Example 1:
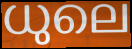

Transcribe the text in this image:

ധുലെ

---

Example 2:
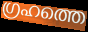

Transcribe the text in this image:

ഗ്രഹത്തെ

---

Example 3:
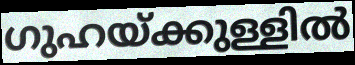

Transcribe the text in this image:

ഗുഹയ്ക്കുള്ളിൽ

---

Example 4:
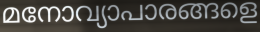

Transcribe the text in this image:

മനോവ്യാപാരങ്ങളെ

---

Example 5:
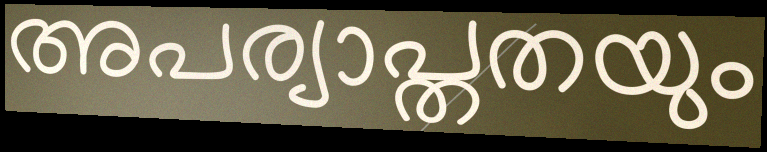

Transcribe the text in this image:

അപര്യാപ്തതയും